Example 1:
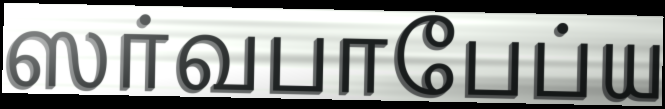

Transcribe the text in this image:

ஸர்வபாபேப்ய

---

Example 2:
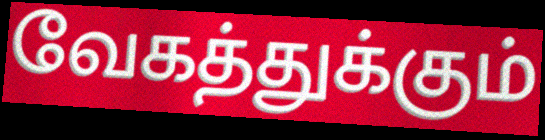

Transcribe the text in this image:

வேகத்துக்கும்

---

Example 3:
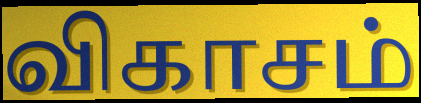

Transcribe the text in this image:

விகாசம்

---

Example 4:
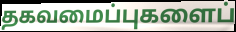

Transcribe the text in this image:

தகவமைப்புகளைப்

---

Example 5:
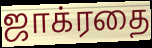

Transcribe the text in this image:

ஜாக்ரதை